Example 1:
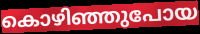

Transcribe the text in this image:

കൊഴിഞ്ഞുപോയ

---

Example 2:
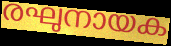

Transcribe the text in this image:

രഘുനായക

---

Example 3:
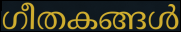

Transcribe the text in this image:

ഗീതകങ്ങൾ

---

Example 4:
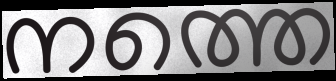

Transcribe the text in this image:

നത്തെ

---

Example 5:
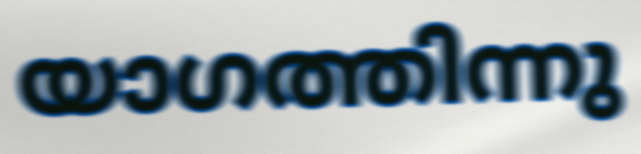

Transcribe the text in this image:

യാഗത്തിന്നു